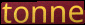
tonne